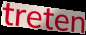
treten